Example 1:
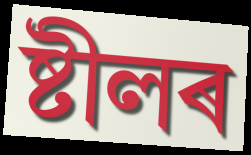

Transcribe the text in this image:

ষ্টীলৰ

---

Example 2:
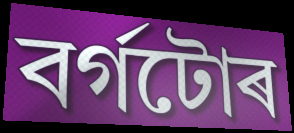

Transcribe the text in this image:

বৰ্গটোৰ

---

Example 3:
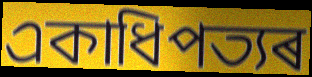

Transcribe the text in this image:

একাধিপত্যৰ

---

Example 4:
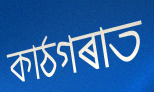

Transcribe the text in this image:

কাঠগৰাত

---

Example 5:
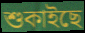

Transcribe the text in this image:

শুকাইছে